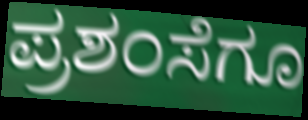
ಪ್ರಶಂಸೆಗೂ